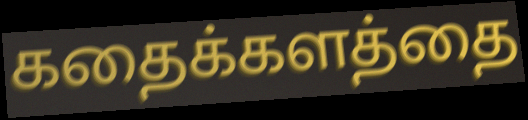
கதைக்களத்தை